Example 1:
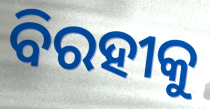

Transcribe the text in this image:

ବିରହୀକୁ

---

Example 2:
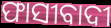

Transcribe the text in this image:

ଫାସୀବାଦୀ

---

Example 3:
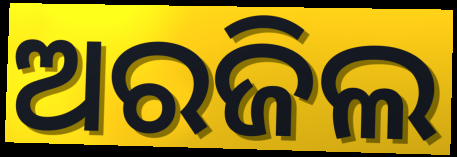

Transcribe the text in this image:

ଅରଜିଲ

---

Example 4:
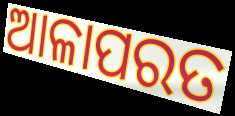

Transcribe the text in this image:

ଆଳାପରତ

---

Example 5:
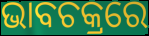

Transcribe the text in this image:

ଭାବଚକ୍ରରେ